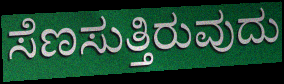
ಸೆಣಸುತ್ತಿರುವುದು